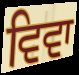
ਵਿਵਾ